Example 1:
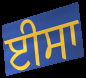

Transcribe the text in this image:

ਈਸਾ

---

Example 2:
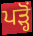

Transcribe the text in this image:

ਪੜ੍ਹੋਂ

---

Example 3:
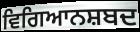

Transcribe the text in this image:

ਵਿਗਿਆਨਸ਼ਬਦ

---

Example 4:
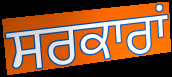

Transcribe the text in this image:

ਸਰਕਾਰਾਂ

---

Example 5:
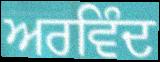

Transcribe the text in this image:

ਅਰਵਿੰਦ